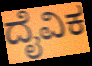
ದೈವಿಕ